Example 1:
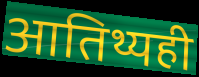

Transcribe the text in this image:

आतिथ्यही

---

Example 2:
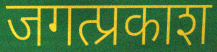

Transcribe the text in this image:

जगत्प्रकाश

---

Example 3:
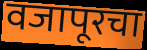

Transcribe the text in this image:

वजापूरचा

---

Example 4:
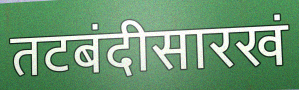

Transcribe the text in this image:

तटबंदीसारखं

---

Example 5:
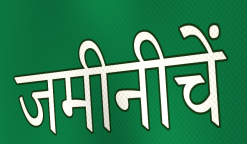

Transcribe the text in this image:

जमीनीचें